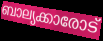
ബാല്യക്കാരോട്